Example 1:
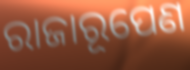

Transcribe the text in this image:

ରାଜାରୂପେଣ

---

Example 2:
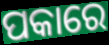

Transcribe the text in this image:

ପକାରେ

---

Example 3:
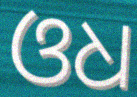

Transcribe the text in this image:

ଓଧ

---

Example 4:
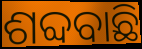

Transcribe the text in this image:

ଶବ୍ଦବାଛି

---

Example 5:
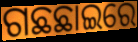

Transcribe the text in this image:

ଗଛଛାଇରେ